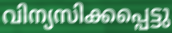
വിന്യസിക്കപ്പെട്ടു